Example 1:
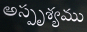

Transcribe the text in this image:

అస్పృశ్యము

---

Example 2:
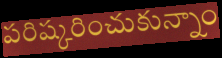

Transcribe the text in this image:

పరిష్కరించుకున్నాం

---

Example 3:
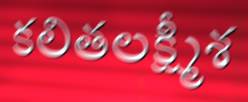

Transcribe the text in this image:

కలితలక్ష్మీశ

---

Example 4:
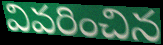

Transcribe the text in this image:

వివరించిన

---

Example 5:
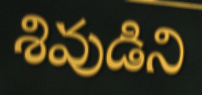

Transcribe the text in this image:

శివుడిని